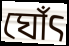
ঘোঁৎ